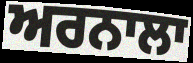
ਅਰਨਾਲਾ